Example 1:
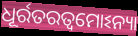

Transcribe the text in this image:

ଧୂର୍ରତରତ୍ୱମୋଽନ୍ୟା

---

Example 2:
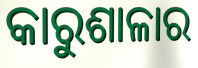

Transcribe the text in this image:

କାରୁଶାଳାର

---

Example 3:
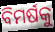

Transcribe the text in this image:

ବିମର୍ଷକୁ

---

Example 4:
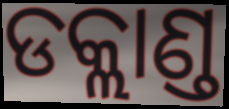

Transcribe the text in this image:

ଡକ୍ଲାଣ୍ଡ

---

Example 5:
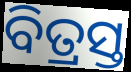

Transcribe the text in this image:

ବିତ୍ରସ୍ତ